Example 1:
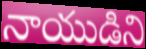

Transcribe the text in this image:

నాయుడిని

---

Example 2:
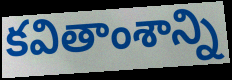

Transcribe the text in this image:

కవితాంశాన్ని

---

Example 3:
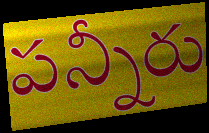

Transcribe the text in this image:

పన్నీరు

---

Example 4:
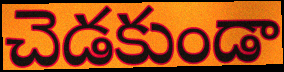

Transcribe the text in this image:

చెడకుండా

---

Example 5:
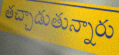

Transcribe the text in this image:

తచ్చాడుతున్నారు